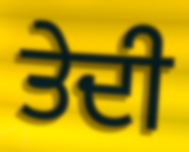
ਤੇਦੀ